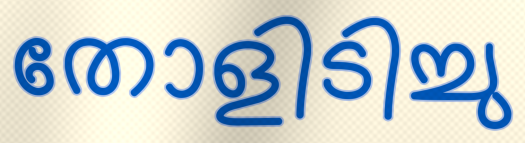
തോളിടിച്ചു